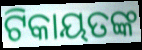
ଟିକାୟତଙ୍କ